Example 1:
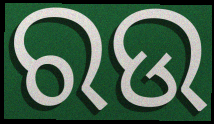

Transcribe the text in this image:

ରଉ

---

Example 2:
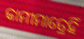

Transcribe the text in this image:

କାମୀମାତ୍ରେହିଁ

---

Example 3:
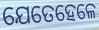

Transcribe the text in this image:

ଯେତେହେଳେ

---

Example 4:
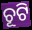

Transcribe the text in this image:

ଚୂଟି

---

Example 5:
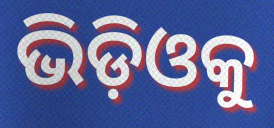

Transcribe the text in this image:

ଭିଡ଼ିଓକୁ